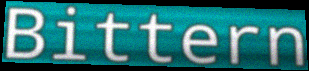
Bittern